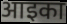
आइका